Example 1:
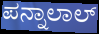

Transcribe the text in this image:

ಪನ್ನಾಲಾಲ್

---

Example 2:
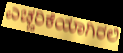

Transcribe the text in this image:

ಎಚ್ಚರಿಕೆಯಾಗಿರಲಿ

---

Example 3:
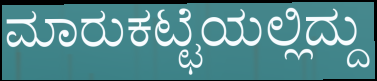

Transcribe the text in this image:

ಮಾರುಕಟ್ಟೆಯಲ್ಲಿದ್ದು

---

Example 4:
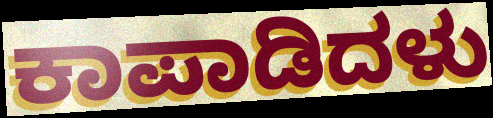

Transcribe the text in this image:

ಕಾಪಾಡಿದಳು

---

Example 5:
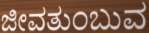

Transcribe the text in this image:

ಜೀವತುಂಬುವ